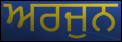
ਅਰਜੁਨ